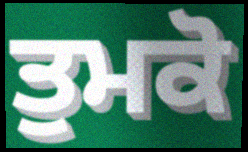
ਤੁਮਕੋ